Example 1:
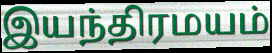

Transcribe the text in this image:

இயந்திரமயம்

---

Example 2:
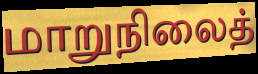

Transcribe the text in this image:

மாறுநிலைத்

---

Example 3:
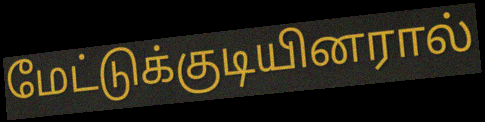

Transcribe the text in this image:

மேட்டுக்குடியினரால்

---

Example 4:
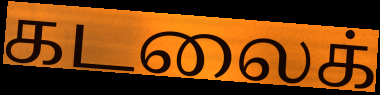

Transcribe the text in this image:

கடலைக்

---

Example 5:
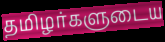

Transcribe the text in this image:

தமிழர்களுடைய